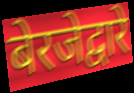
बेरजेद्वारे